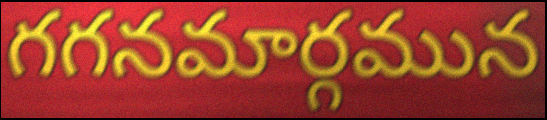
గగనమార్గమున